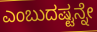
ಎಂಬುದಷ್ಟನ್ನೇ